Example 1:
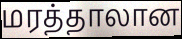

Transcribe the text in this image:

மரத்தாலான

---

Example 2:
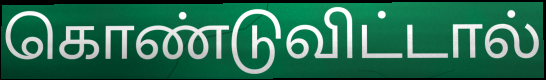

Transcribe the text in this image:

கொண்டுவிட்டால்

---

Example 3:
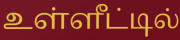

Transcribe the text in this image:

உள்ளீட்டில்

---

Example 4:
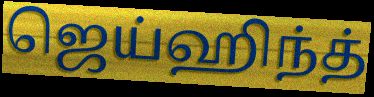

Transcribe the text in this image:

ஜெய்ஹிந்த்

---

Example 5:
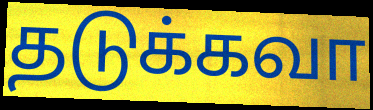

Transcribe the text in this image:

தடுக்கவா